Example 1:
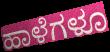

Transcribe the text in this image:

ಹಾಳೆಗಳೂ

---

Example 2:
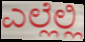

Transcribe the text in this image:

ಎಲ್ಲೆಲ್ಲಿ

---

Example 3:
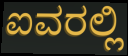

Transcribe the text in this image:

ಐವರಲ್ಲಿ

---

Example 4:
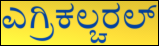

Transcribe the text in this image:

ಎಗ್ರಿಕಲ್ಚರಲ್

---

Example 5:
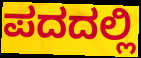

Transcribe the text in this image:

ಪದದಲ್ಲಿ